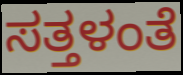
ಸತ್ತಳಂತೆ